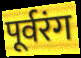
पूर्वरंग